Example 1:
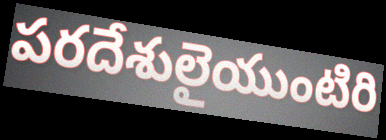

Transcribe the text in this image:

పరదేశులైయుంటిరి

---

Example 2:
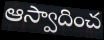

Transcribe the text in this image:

ఆస్వాదించ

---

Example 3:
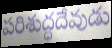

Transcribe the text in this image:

పరిశుద్ధదేవుడు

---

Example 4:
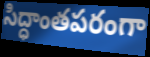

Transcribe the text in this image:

సిద్ధాంతపరంగా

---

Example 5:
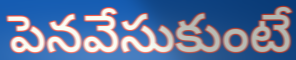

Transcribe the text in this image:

పెనవేసుకుంటే